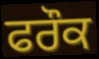
ਫਰੌਕ